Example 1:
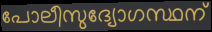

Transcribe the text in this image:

പോലീസുദ്യോഗസ്ഥന്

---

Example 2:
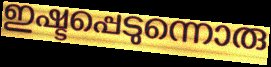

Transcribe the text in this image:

ഇഷ്ടപ്പെടുന്നൊരു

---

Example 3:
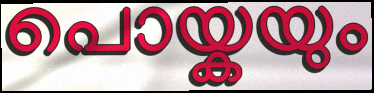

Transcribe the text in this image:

പൊയ്കയും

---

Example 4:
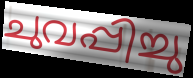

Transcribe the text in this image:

ചുവപ്പിച്ചു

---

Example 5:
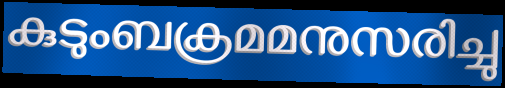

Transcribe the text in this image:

കുടുംബക്രമമനുസരിച്ചു